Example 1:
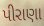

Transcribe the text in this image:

પીરાણા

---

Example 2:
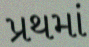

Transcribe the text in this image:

પ્રથમાં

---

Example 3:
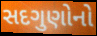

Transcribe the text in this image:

સદગુણોનો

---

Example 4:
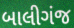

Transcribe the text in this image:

બાલીગંજ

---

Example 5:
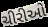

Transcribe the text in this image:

ચીરીઓ